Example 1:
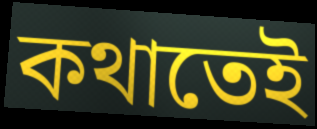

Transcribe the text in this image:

কথাতেই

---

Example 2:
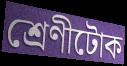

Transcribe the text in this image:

শ্ৰেণীটোক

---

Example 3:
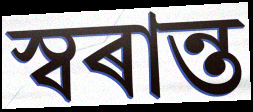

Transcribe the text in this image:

স্বৰান্ত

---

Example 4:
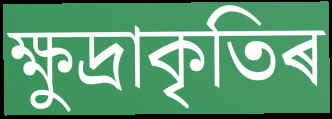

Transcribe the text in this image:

ক্ষুদ্ৰাকৃতিৰ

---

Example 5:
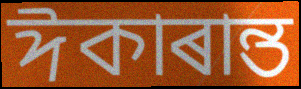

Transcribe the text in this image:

ঈকাৰান্ত